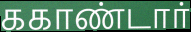
ககாண்டார்